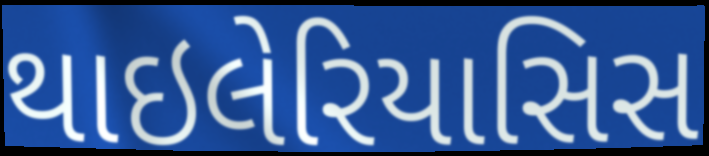
થાઇલેરિયાસિસ